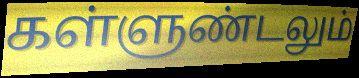
கள்ளுண்டலும்